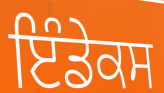
ਇੰਡੇਕਸ